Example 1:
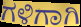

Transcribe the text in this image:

ಗಳಿಗಾಗಿ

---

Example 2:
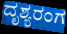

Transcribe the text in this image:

ದೃಶ್ಯರಂಗ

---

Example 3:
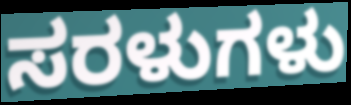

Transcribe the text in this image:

ಸರಳುಗಳು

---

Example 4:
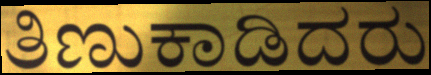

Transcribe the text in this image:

ತಿಣುಕಾಡಿದರು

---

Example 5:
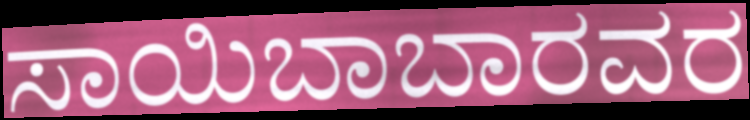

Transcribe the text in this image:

ಸಾಯಿಬಾಬಾರವರ